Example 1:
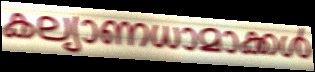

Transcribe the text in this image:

കല്യാണധാമാക്കൾ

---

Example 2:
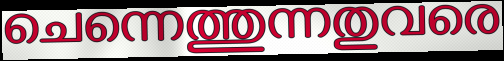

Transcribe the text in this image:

ചെന്നെത്തുന്നതുവരെ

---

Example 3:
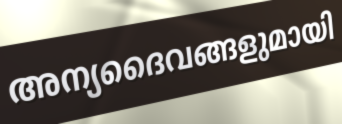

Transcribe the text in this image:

അന്യദൈവങ്ങളുമായി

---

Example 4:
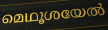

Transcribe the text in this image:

മെഥൂശയേൽ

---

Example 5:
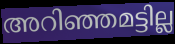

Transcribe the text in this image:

അറിഞ്ഞമട്ടില്ല